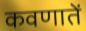
कवणातें